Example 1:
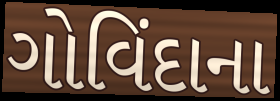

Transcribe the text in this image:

ગોવિંદાના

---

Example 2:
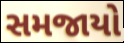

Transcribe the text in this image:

સમજાયો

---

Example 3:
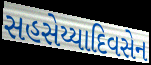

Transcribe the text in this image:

સહસેય્યાદિવસેન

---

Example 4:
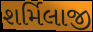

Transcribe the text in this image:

શર્મિલાજી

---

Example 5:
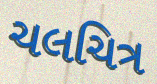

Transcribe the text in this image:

ચલચિત્ર